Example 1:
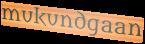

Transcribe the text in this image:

mukundgaan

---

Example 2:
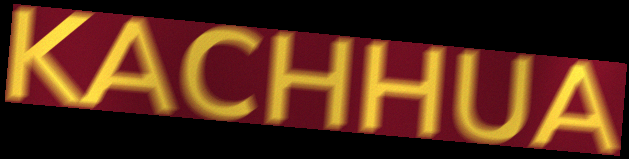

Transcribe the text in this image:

KACHHUA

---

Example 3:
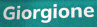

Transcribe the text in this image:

Giorgione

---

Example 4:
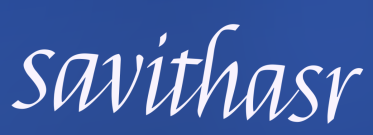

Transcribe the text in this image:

savithasr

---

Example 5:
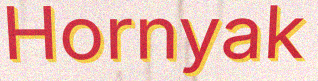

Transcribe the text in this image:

Hornyak